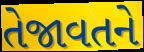
તેજાવતને